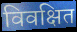
विवक्षित